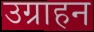
उग्राहन